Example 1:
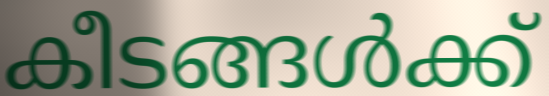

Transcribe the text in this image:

കീടങ്ങൾക്ക്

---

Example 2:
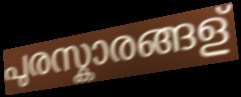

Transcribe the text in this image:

പുരസ്കാരങ്ങള്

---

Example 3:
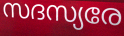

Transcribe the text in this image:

സദസ്യരേ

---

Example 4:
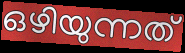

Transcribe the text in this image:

ഒഴിയുന്നത്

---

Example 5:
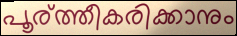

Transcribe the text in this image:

പൂര്ത്തീകരിക്കാനും